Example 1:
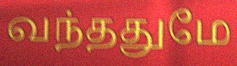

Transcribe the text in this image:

வந்ததுமே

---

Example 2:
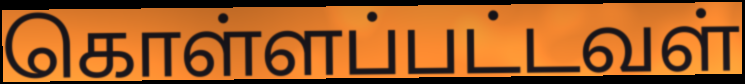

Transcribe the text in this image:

கொள்ளப்பட்டவள்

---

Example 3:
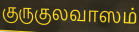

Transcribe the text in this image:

குருகுலவாஸம்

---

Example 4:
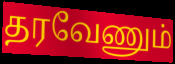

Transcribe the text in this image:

தரவேணும்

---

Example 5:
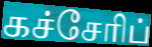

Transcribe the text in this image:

கச்சேரிப்